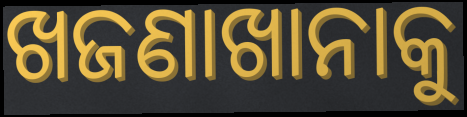
ଖଜଣାଖାନାକୁ